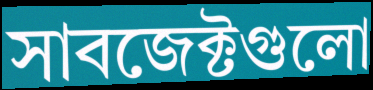
সাবজেক্টগুলো